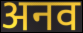
अनव